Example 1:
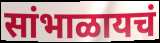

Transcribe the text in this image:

सांभाळायचं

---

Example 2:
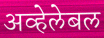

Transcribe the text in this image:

अव्हेलेबल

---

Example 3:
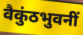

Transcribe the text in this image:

वैकुंठभुवनीं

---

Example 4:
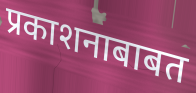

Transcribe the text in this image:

प्रकाशनाबाबत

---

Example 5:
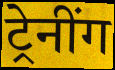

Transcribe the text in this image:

ट्रेनींग